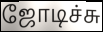
ஜோடிச்சு